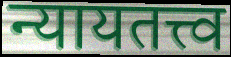
न्यायतत्त्व